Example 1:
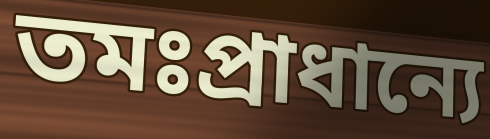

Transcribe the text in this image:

তমঃপ্রাধান্যে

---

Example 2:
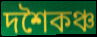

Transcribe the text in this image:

দশৈকঞ্চ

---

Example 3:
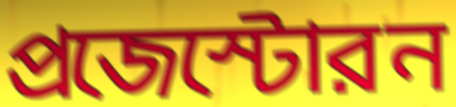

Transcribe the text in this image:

প্রজেস্টোরন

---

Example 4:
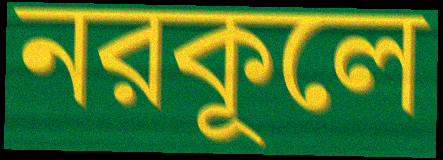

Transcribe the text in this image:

নরকূলে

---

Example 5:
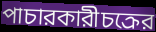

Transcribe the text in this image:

পাচারকারীচক্রের